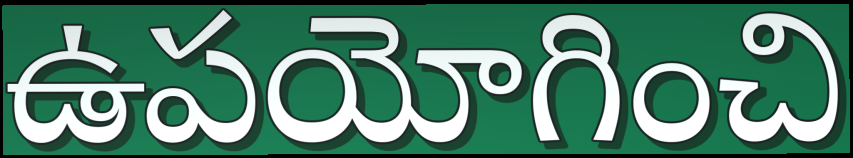
ఉపయోగించి